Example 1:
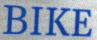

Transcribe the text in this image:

BIKE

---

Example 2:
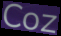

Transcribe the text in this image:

Coz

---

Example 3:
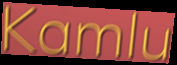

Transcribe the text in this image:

Kamlu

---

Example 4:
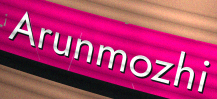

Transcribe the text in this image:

Arunmozhi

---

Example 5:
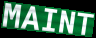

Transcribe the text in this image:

MAINT